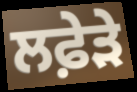
ਲਫ਼ੇੜੇ